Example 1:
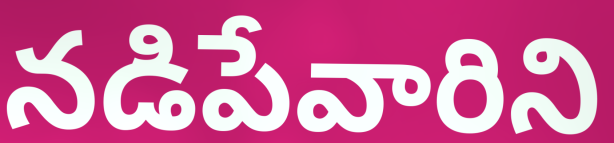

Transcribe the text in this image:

నడిపేవారిని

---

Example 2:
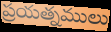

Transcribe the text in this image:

ప్రయత్నములు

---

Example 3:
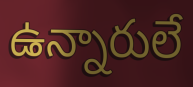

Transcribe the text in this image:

ఉన్నారులే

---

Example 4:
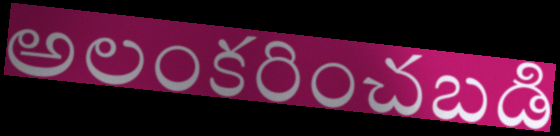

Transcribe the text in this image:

అలంకరించబడి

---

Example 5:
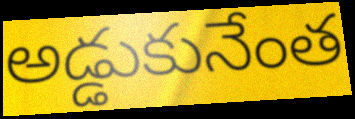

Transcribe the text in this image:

అడ్డుకునేంత